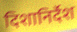
दिशानिर्देश